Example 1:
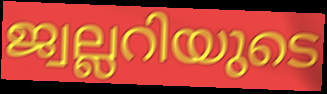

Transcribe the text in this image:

ജ്വല്ലറിയുടെ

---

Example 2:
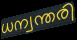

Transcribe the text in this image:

ധന്വന്തരി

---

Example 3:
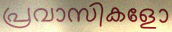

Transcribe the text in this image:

പ്രവാസികളോ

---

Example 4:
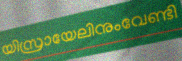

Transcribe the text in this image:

യിസ്രായേലിനുംവേണ്ടി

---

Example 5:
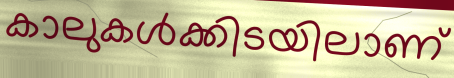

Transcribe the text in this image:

കാലുകൾക്കിടയിലാണ്